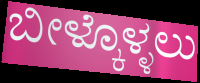
ಬೀಳ್ಕೊಳ್ಳಲು